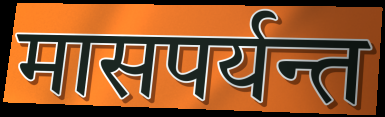
मासपर्यन्त